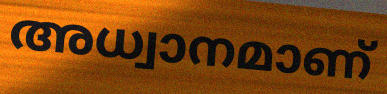
അധ്വാനമാണ്